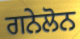
ਗਨੇਲੋਨ